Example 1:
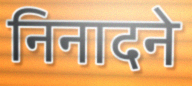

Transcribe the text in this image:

निनादने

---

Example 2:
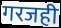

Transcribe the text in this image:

गरजही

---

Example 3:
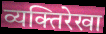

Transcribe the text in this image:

व्यक्तिरेखा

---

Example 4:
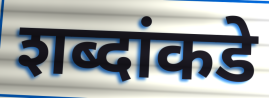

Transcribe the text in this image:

शब्दांकडे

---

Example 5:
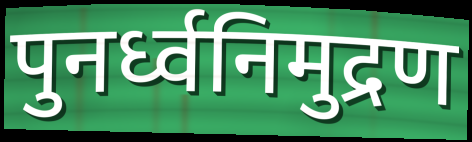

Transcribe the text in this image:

पुनर्ध्वनिमुद्रण